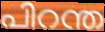
പിറന്ത